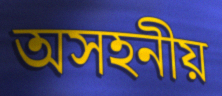
অসহনীয়